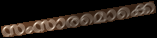
സംസാരമൊക്കെ